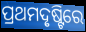
ପ୍ରଥମଦୃଷ୍ଟିରେ